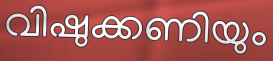
വിഷുക്കണിയും